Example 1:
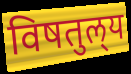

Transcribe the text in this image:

विषतुल्य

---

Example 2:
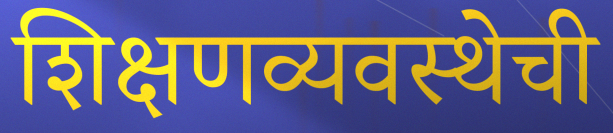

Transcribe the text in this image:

शिक्षणव्यवस्थेची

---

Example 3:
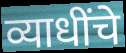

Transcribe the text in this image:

व्याधींचे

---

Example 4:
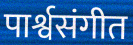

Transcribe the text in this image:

पार्श्वसंगीत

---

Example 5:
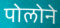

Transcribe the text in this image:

पोलोने